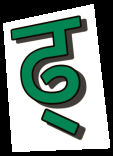
ढ्